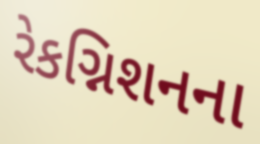
રેકગ્નિશનના